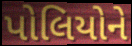
પોલિયોને